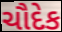
ચૌદેક